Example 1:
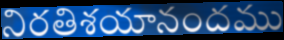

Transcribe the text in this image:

నిరతిశయానందము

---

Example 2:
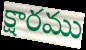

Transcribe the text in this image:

క్షారము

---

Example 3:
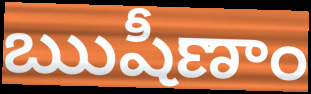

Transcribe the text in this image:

ఋషీణాం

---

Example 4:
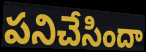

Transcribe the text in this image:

పనిచేసిందా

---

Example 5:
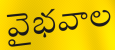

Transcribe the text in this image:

వైభవాల